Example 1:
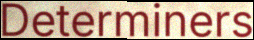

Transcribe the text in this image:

Determiners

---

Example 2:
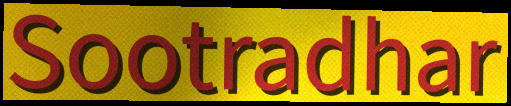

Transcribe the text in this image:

Sootradhar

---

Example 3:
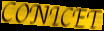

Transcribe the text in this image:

CONICET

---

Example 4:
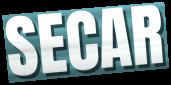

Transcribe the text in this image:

SECAR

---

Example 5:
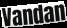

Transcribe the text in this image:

Vandan